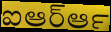
ఐఆర్ఆర్‍